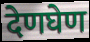
देणघेण